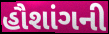
હૌશાંગની